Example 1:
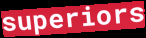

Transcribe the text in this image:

superiors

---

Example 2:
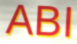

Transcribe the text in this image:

ABI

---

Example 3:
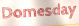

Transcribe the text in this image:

Domesday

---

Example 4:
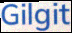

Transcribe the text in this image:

Gilgit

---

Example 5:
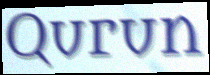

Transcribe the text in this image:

Qurun